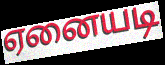
ஏனையடி